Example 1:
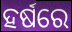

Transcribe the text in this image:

ହର୍ଷରେ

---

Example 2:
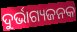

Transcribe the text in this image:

ଦୁର୍ଭାଗ୍ୟଜନକ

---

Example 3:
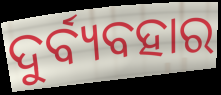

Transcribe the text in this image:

ଦୁର୍ବ୍ୟବହାର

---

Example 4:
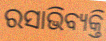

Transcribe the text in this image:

ରସାଭିବ୍ୟକ୍ତି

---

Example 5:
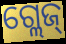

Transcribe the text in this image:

ଗ୍ଲେଜ୍